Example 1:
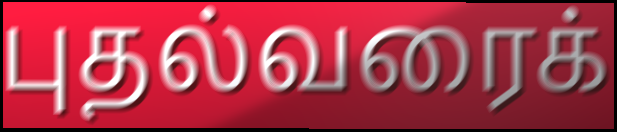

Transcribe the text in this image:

புதல்வரைக்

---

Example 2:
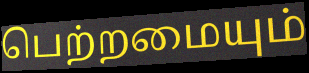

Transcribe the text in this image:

பெற்றமையும்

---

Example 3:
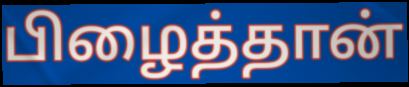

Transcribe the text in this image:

பிழைத்தான்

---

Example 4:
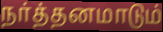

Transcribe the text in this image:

நர்த்தனமாடும்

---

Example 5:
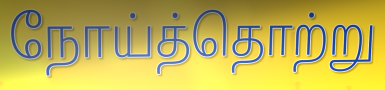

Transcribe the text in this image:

நோய்த்தொற்று